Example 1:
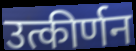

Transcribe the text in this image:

उत्कीर्णन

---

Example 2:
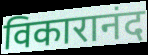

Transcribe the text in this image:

विकारानंद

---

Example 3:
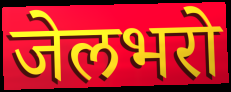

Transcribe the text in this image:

जेलभरो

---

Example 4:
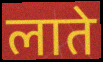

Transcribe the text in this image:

लाते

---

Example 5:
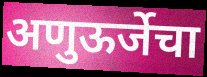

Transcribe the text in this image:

अणुऊर्जेचा